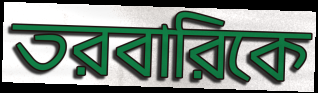
তরবারিকে